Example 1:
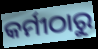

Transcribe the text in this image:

କର୍ମୀଠାରୁ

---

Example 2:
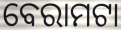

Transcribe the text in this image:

ବେରାମଟା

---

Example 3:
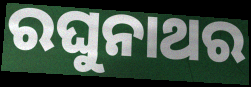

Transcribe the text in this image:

ରଘୁନାଥର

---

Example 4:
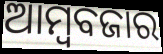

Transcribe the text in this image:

ଆମ୍ୱବଜାର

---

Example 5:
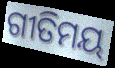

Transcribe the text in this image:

ଗୀତିମୟ